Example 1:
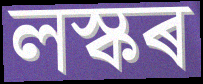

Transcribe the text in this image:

লস্কৰ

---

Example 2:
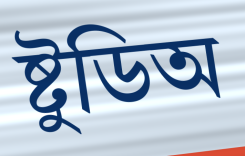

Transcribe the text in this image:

ষ্টুডিঅ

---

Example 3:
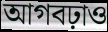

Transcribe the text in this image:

আগবঢ়াও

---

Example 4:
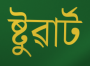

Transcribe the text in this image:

ষ্টুৱাৰ্ট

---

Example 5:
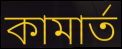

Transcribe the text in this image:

কামাৰ্ত